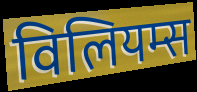
विलियम्‍स